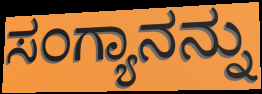
ಸಂಗ್ಯಾನನ್ನು